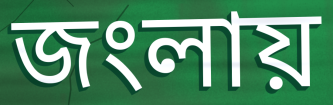
জংলায়